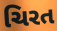
ચિરત